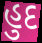
હુદ